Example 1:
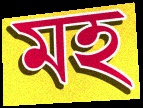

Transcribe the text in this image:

মহ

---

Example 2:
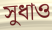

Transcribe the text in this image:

সুধাও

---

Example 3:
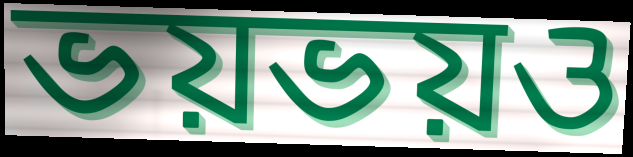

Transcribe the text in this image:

ভয়ভয়ও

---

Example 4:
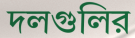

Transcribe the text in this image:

দলগুলির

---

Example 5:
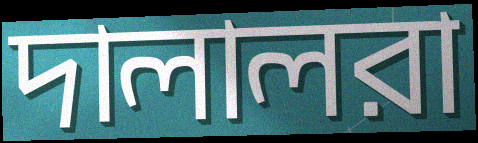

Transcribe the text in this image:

দালালরা